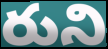
రుని